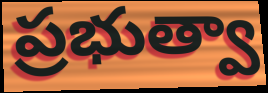
ప్రభుత్వా